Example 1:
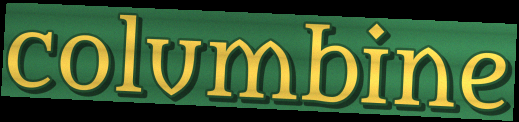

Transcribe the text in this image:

columbine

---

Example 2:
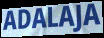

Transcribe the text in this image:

ADALAJA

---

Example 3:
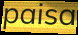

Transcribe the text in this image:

paisa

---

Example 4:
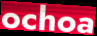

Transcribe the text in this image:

ochoa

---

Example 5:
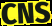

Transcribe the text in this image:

CNS